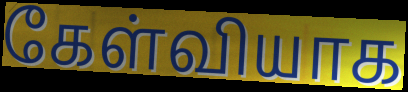
கேள்வியாக